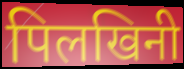
पिलखिनी